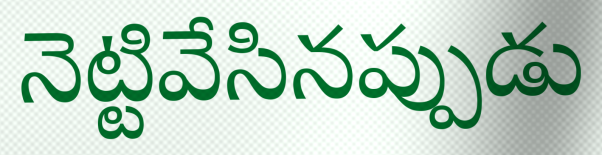
నెట్టివేసినప్పుడు